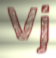
Vj